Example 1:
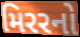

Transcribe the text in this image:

મિરરનો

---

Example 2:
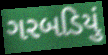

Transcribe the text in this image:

ગરબડિયું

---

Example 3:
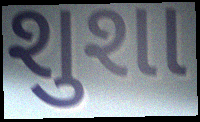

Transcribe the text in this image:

શુશા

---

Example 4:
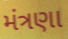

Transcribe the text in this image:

મંત્રણા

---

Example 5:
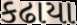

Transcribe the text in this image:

કઢાયા